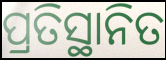
ପ୍ରତିସ୍ଥାନିତ